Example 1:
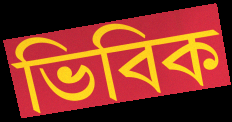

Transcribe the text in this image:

ভিবিক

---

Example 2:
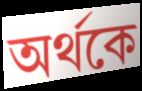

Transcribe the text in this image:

অর্থকে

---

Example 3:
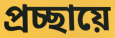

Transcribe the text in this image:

প্রচ্ছায়ে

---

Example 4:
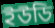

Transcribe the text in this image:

ইউডি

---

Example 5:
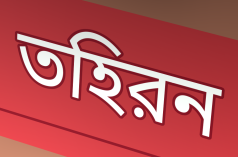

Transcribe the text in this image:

তহিরন